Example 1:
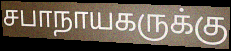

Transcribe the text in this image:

சபாநாயகருக்கு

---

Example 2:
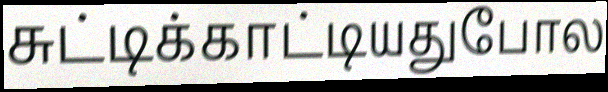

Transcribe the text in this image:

சுட்டிக்காட்டியதுபோல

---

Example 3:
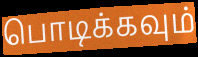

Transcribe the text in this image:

பொடிக்கவும்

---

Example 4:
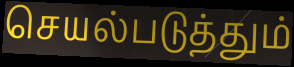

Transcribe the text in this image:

செயல்படுத்தும்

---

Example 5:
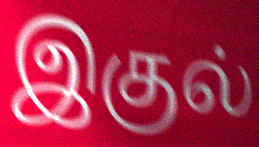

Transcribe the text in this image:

இகுல்